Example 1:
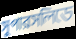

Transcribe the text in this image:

সুপারসলিডে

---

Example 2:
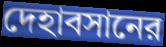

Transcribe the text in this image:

দেহাবসানের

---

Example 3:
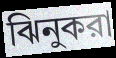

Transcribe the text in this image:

ঝিনুকরা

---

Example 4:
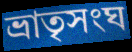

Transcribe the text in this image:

ভ্রাতৃসংঘ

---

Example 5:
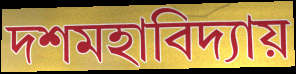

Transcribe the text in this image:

দশমহাবিদ্যায়